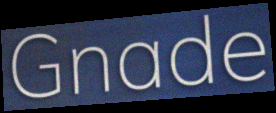
Gnade